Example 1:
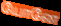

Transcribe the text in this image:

யோனே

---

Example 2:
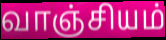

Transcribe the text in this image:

வாஞ்சியம்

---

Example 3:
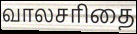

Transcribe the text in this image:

வாலசரிதை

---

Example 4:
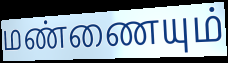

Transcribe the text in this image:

மண்ணையும்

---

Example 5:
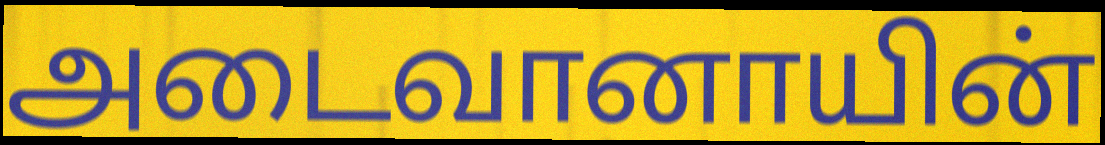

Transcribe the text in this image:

அடைவானாயின்